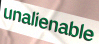
unalienable